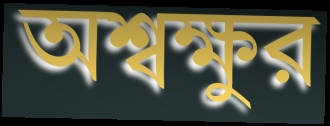
অশ্বক্ষুর